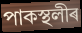
পাকস্থলীৰ